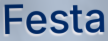
Festa